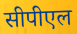
सीपीएल